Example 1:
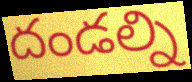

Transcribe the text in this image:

దండల్ని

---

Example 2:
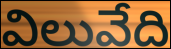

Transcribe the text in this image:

విలువేది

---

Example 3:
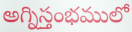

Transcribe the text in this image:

అగ్నిస్తంభములో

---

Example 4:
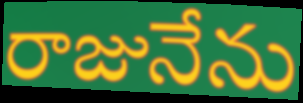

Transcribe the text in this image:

రాజునేను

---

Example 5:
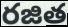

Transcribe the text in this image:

రజిత